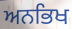
ਅਨਭਿਖ